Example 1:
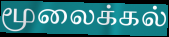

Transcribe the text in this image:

மூலைக்கல்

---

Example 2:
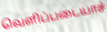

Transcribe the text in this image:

வெளிப்படையாச்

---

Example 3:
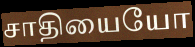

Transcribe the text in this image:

சாதியையோ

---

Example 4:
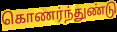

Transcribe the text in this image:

கொணர்ந்துண்டு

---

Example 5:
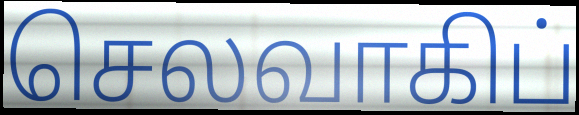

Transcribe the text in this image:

செலவாகிப்